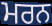
ਮਰਨ